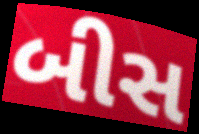
બીસ